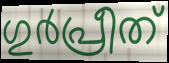
ഗുർപ്രീത്